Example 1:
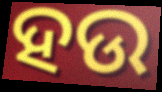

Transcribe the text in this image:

ହଉ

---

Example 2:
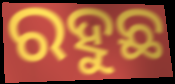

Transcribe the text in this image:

ରହୁଛ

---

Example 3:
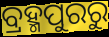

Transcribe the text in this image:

ବ୍ରହ୍ମପୁରରୁ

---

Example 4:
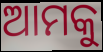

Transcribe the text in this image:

ଆମକୁ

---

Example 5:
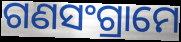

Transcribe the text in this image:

ଗଣସଂଗ୍ରାମେ